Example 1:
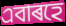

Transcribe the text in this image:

এবাৰহে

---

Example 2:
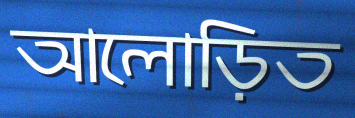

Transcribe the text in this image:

আলোড়িত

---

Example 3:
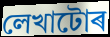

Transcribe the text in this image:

লেখাটোৰ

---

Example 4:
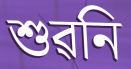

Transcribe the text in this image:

শুৱনি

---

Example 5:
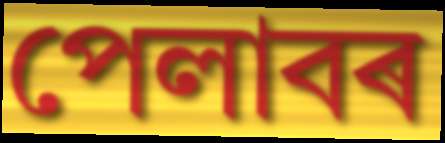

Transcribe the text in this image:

পেলাবৰ